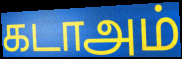
கடாஅம்